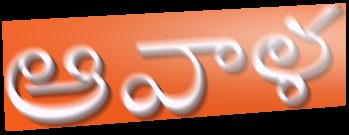
ఆవాళ